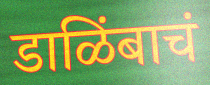
डाळिंबाचं